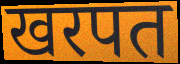
खरपत